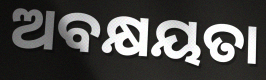
ଅବକ୍ଷୟତା